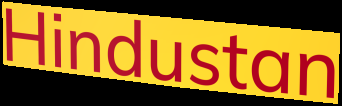
Hindustan